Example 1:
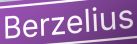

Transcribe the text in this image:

Berzelius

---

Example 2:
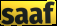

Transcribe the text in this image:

saaf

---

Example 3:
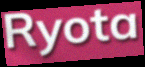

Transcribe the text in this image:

Ryota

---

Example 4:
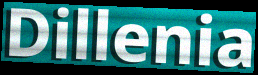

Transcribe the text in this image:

Dillenia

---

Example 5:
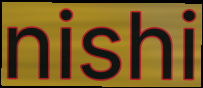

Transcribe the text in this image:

nishi